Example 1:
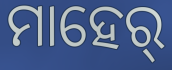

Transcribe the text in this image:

ମାହେର୍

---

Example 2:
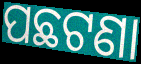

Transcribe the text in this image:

ପଛଟଣା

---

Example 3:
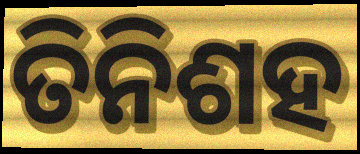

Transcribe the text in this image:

ତିନିଶହ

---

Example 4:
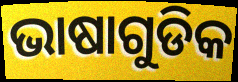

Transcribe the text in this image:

ଭାଷାଗୁଡିକ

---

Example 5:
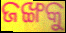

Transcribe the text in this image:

ଜଙ୍ଖକୁ